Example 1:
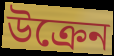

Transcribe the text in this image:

উক্রেন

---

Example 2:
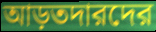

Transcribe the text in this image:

আড়তদারদের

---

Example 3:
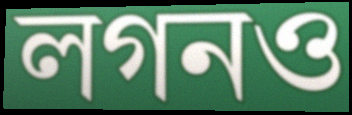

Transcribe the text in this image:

লগনও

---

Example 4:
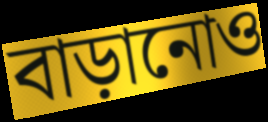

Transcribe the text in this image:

বাড়ানোও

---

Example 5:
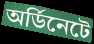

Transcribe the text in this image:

অর্ডিনেটে